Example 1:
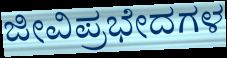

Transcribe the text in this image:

ಜೀವಿಪ್ರಭೇದಗಳ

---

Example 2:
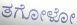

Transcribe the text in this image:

ತಗೋಳೋ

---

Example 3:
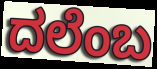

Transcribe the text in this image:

ದಲೆಂಬ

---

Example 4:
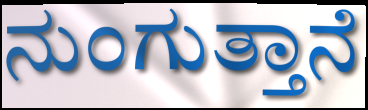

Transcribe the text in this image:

ನುಂಗುತ್ತಾನೆ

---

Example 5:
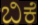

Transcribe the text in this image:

ಬಿಕೆ